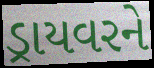
ડ્રાયવરને